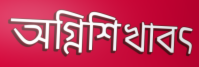
অগ্নিশিখাবৎ